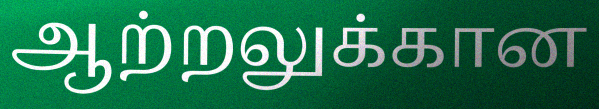
ஆற்றலுக்கான